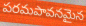
పరమపావనమైన